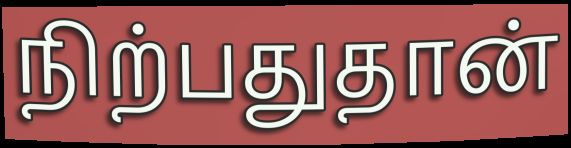
நிற்பதுதான்